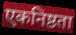
एकनिष्ठता